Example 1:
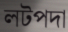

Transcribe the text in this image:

লটপদা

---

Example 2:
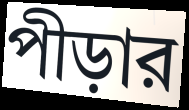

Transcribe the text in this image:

পীড়ার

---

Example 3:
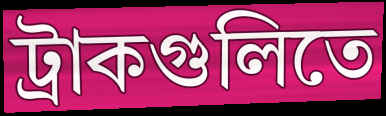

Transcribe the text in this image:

ট্রাকগুলিতে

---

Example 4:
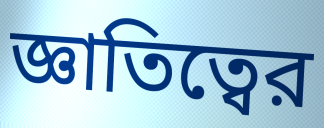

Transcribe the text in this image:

জ্ঞাতিত্বের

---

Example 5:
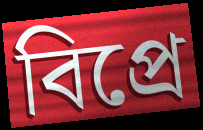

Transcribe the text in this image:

বিপ্রে